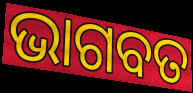
ଭାଗବତ